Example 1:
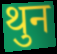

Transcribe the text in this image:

थुन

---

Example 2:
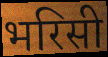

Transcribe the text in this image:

भरिसी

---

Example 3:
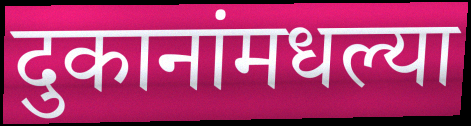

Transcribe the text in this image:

दुकानांमधल्या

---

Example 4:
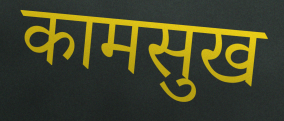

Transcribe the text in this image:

कामसुख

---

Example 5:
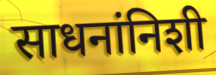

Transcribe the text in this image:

साधनांनिशी